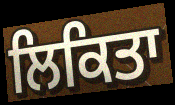
ਲਿਕਿਤਾ